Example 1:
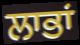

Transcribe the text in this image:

ਲਾਭਾਂ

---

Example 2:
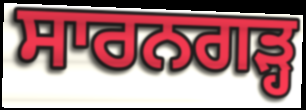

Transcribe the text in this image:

ਸਾਰਨਗੜ੍ਹ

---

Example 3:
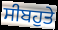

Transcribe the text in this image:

ਸੀਬਹੁਤੇ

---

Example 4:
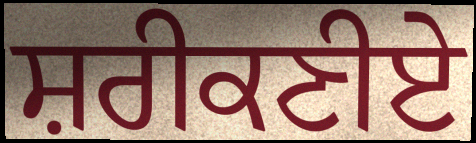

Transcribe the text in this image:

ਸ਼ਰੀਕਣੀਏ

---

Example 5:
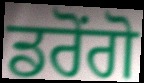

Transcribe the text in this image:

ਡਰੋਂਗੋ